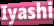
Iyashi